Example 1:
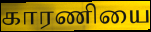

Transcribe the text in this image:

காரணியை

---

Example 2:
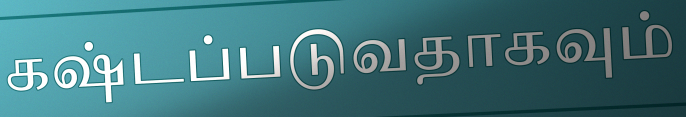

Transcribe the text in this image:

கஷ்டப்படுவதாகவும்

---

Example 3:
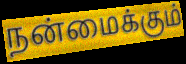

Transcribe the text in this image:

நன்மைக்கும்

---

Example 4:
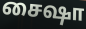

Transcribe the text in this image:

சைஷா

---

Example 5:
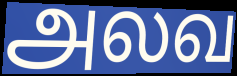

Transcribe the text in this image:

அலவ